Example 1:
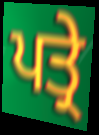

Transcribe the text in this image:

ਪਤ੍ਰੇ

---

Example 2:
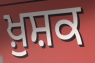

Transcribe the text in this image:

ਖ਼ੁਸ਼ਕ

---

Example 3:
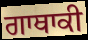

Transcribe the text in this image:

ਗਾਥਾਕੀ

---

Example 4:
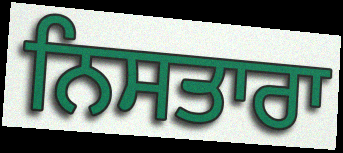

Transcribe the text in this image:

ਨਿਸਤਾਰਾ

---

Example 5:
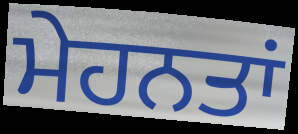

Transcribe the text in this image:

ਮੇਹਨਤਾਂ